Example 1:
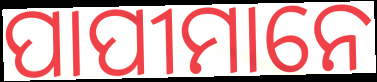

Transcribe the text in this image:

ପାପୀମାନେ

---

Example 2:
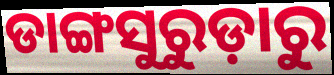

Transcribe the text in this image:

ଡାଙ୍ଗସୁରୁଡ଼ାରୁ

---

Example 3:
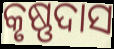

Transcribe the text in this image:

କୃଷ୍ଣଦାସ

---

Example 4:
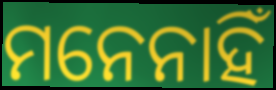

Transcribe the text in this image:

ମନେନାହିଁ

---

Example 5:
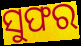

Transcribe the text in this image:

ସୁଫର